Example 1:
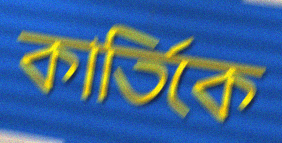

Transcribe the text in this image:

কার্তিকে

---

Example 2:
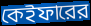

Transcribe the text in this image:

কেইফারের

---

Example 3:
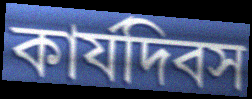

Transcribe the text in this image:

কার্যদিবস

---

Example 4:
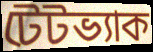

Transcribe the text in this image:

টেটভ্যাক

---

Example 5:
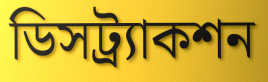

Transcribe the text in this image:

ডিসট্র্যাকশন